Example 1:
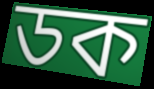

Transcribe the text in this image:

ডক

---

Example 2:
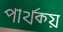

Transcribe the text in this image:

পাৰ্থক্য়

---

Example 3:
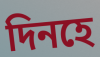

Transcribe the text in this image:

দিনহে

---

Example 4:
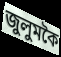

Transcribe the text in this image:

জুলুমকৈ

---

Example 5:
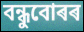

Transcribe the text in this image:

বন্ধুবোৰৰ